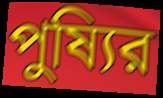
পুষ্যির